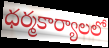
ధర్మకార్యాలలో